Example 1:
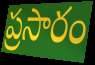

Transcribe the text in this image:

ప్రసారం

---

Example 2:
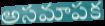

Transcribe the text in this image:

అసమాపక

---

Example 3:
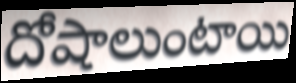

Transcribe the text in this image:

దోషాలుంటాయి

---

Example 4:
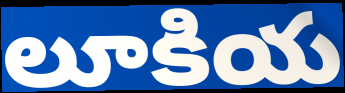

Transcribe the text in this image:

లూకియ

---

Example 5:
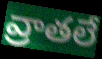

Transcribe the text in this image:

వ్రాతలే